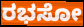
ರಭಸೋ